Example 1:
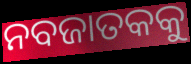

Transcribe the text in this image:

ନବଜାତକକୁ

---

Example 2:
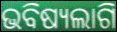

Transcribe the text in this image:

ଭବିଷ୍ୟଲାଗି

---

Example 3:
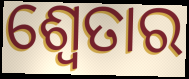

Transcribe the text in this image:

ଶ୍ଵେତାର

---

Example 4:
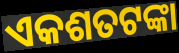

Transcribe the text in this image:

ଏକଶତଟଙ୍କା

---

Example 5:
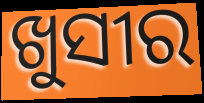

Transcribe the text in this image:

ଖୁସୀର